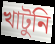
খাটুনি